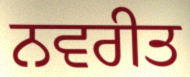
ਨਵਰੀਤ